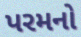
પરમનો